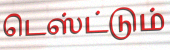
டெஸ்ட்டும்